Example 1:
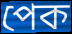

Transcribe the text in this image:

পেক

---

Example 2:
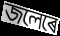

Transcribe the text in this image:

জলেৰে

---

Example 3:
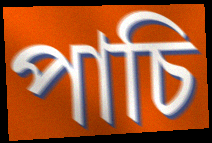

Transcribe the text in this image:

পাচি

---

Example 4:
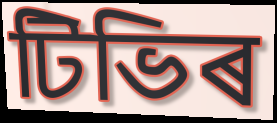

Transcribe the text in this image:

টিভিৰ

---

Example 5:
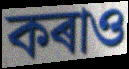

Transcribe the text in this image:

কৰাও